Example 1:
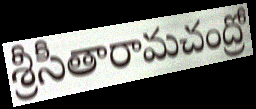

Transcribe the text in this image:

శ్రీసీతారామచంద్రో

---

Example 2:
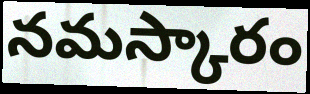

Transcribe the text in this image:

నమస్కారం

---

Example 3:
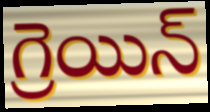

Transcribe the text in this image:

గ్రెయిన్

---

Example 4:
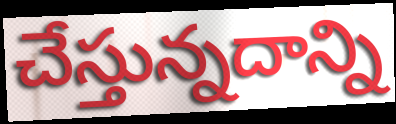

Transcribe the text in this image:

చేస్తున్నదాన్ని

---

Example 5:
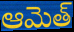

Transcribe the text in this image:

ఆమెత్